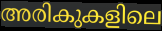
അരികുകളിലെ